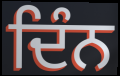
ਦਿੰਨ